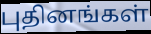
புதினங்கள்